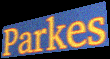
Parkes